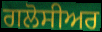
ਗਲੋਸੀਅਰ